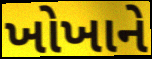
ખોખાને